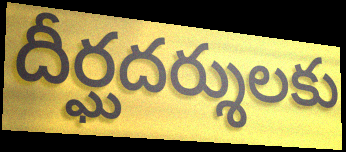
దీర్ఘదర్శులకు